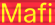
Mafi